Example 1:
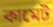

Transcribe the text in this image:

কামেট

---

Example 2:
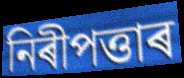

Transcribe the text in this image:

নিৰীপত্তাৰ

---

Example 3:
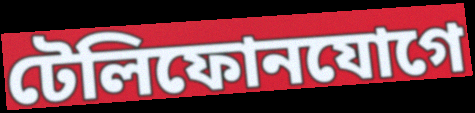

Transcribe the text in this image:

টেলিফোনযোগে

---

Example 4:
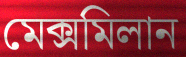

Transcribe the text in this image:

মেক্সমিলান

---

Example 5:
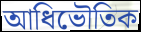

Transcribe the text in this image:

আধিভৌতিক